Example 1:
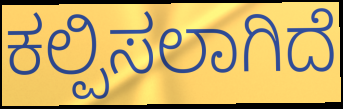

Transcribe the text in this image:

ಕಲ್ಪಿಸಲಾಗಿದೆ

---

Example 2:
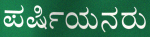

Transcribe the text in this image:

ಪರ್ಷಿಯನರು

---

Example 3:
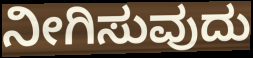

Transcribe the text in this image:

ನೀಗಿಸುವುದು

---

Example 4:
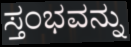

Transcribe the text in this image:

ಸ್ತಂಭವನ್ನು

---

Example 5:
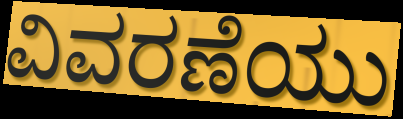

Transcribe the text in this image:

ವಿವರಣೆಯು